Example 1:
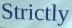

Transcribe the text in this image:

Strictly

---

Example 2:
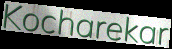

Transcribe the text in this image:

Kocharekar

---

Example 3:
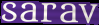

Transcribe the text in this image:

sarav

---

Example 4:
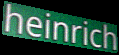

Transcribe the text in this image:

heinrich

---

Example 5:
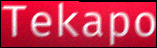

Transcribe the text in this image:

Tekapo